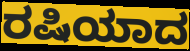
ರಷಿಯಾದ